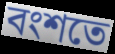
বংশতে